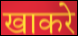
खाकरे